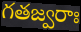
గతజ్వరాః